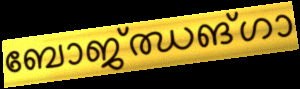
ബോജ്ഝങ്ഗാ